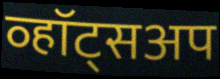
व्हॉट्सअप